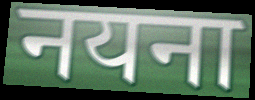
नयना